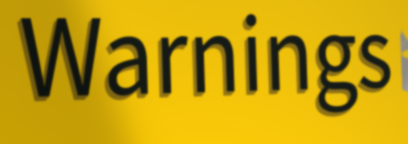
Warnings